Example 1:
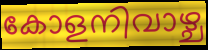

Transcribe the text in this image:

കോളനിവാഴ്ച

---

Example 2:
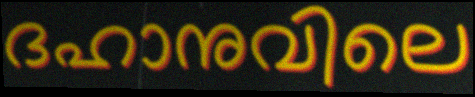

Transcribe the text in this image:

ദഹാനുവിലെ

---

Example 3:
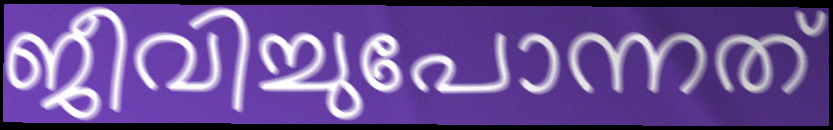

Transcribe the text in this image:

ജീവിച്ചുപോന്നത്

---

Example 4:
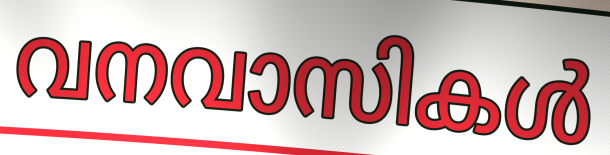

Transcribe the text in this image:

വനവാസികൾ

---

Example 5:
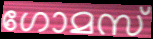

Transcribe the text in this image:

ഗോമസ്